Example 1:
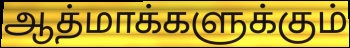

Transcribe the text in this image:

ஆத்மாக்களுக்கும்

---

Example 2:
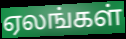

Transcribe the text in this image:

ஏலங்கள்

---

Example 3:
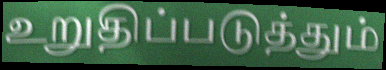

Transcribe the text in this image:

உறுதிப்படுத்தும்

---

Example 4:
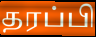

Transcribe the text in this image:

தரப்பி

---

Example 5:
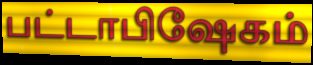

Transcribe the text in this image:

பட்டாபிஷேகம்